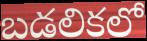
బడలికలో